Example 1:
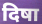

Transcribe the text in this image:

दिषा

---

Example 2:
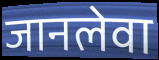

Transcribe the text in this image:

जानलेवा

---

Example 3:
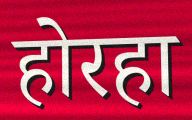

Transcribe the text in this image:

होरहा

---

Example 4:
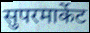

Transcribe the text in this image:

सुपरमार्केट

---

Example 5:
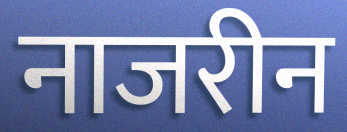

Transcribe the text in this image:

नाजरीन